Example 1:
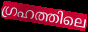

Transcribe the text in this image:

ഗ്രഹത്തിലെ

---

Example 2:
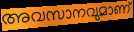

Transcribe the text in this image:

അവസാനവുമാണ്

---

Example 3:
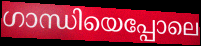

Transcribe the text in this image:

ഗാന്ധിയെപ്പോലെ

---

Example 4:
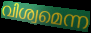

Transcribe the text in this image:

വിശ്വമെന്ന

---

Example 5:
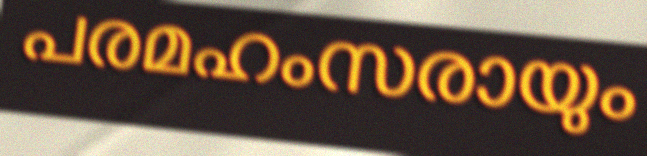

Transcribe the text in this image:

പരമഹംസരായും